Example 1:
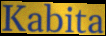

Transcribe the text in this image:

Kabita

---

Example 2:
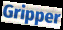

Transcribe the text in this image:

Gripper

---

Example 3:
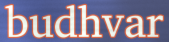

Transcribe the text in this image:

budhvar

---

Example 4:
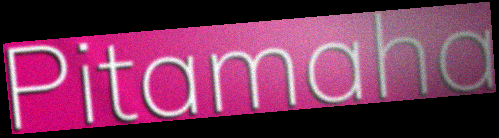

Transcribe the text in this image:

Pitamaha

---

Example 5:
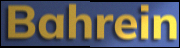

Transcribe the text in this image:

Bahrein